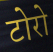
टोरो